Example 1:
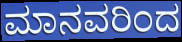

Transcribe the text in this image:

ಮಾನವರಿಂದ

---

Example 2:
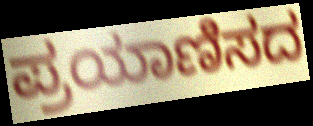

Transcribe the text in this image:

ಪ್ರಯಾಣಿಸದ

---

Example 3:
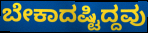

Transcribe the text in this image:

ಬೇಕಾದಷ್ಟಿದ್ದವು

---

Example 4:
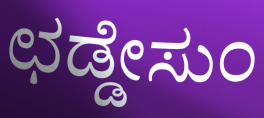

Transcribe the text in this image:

ಛಡ್ಡೇಸುಂ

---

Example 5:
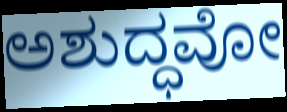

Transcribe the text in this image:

ಅಶುದ್ಧವೋ